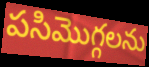
పసిమొగ్గలను